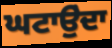
ਘਟਾਉੁਂਦਾ